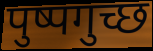
पुष्पगुच्छ